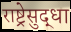
राष्ट्रेसुद्धा